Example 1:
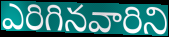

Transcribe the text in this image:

ఎరిగినవారిని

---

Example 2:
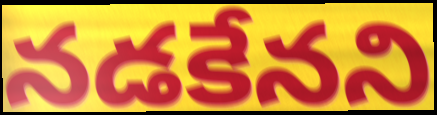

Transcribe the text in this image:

నడకేనని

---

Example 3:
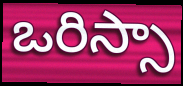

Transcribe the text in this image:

ఒరిస్సా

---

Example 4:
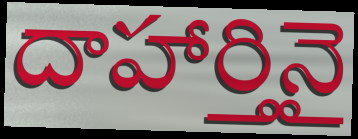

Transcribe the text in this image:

దాహార్తినై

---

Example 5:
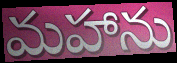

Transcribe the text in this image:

మహాను